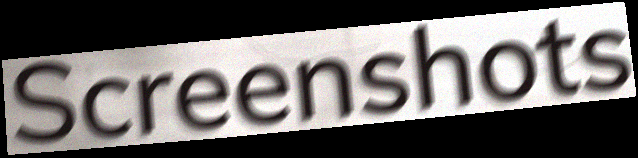
Screenshots